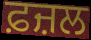
ਫ਼ਜ਼ਲ